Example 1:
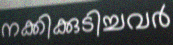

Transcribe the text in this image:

നക്കിക്കുടിച്ചവർ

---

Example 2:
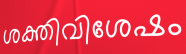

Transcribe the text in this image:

ശക്തിവിശേഷം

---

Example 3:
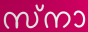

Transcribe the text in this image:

സ്‌നാ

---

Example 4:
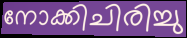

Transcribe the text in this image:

നോക്കിചിരിച്ചു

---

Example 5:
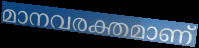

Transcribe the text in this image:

മാനവരക്തമാണ്